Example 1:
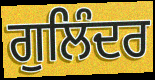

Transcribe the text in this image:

ਗੁਲਿੰਦਰ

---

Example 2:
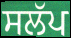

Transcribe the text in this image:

ਸਲੱਪ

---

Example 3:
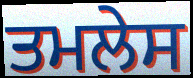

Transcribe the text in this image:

ਤਮਲੇਸ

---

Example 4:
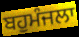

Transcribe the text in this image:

ਬਹੁਮੰਜਲਾ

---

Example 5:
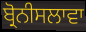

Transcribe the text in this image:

ਬ੍ਰੋਨੀਸਲਾਵਾ